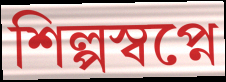
শিল্পস্বপ্নে